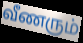
வீணரும்